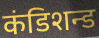
कंडिशन्ड